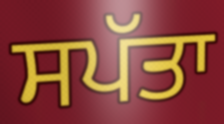
ਸਪੱਤਾ